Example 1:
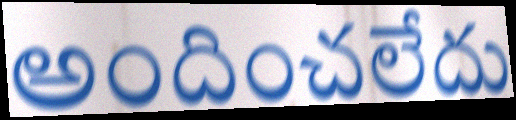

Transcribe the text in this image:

అందించలేదు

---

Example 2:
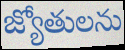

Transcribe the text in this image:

జ్యోతులను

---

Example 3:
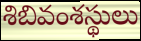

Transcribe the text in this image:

శిబివంశస్థులు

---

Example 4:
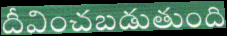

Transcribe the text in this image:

దీవించబడుతుంది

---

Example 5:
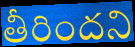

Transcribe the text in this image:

తీరిందని